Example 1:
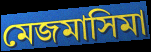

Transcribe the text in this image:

মেজমাসিমা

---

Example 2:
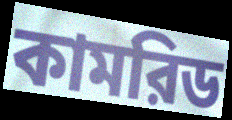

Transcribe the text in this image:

কামরিড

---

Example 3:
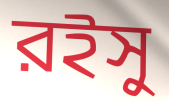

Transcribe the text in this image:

রইসু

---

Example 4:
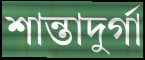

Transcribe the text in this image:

শান্তাদুর্গা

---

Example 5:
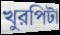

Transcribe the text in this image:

খুরপিটা